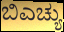
ಬಿಎಚ್ಯು